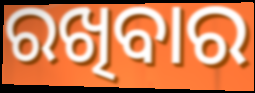
ରଖିବାର